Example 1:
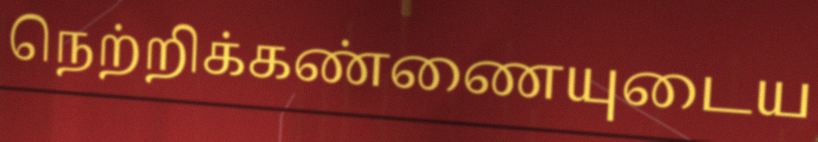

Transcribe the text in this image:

நெற்றிக்கண்ணையுடைய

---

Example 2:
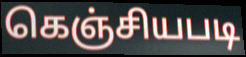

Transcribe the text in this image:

கெஞ்சியபடி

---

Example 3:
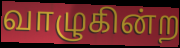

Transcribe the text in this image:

வாழுகின்ற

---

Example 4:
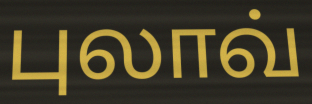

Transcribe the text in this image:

புலாவ்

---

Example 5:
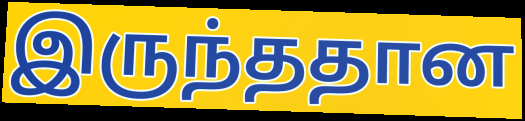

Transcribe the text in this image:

இருந்ததான